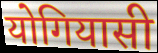
योगियासी